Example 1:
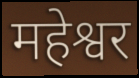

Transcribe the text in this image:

महेश्वर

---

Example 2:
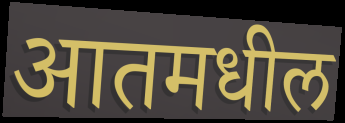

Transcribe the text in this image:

आतमधील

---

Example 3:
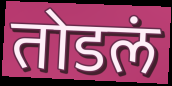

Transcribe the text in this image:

तोडलं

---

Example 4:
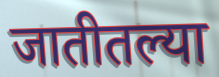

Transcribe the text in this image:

जातीतल्या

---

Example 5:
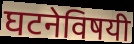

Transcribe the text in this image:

घटनेविषयी